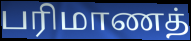
பரிமாணத்